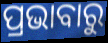
ପ୍ରଭାବାରୁ